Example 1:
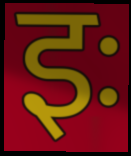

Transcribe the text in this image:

इः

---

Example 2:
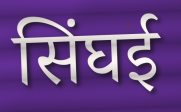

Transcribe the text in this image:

सिंघई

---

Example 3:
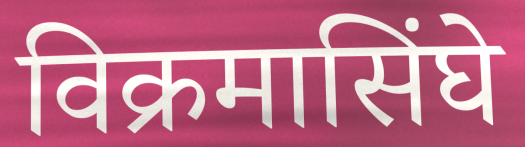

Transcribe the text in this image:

विक्रमासिंघे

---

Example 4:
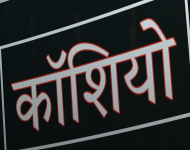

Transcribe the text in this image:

कॉशियो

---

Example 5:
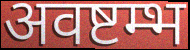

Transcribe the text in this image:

अवष्टम्भ